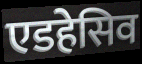
एडहेसिव